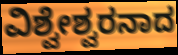
ವಿಶ್ವೇಶ್ವರನಾದ